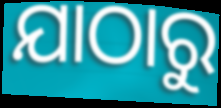
ଯାଠାରୁ